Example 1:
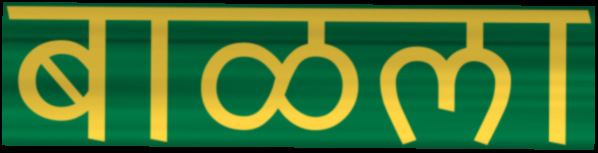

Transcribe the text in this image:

बाळला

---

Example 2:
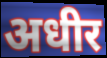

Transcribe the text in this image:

अधीर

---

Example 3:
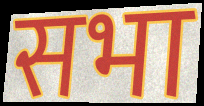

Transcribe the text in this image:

सभा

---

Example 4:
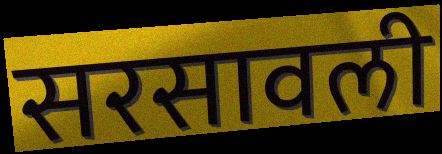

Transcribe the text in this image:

सरसावली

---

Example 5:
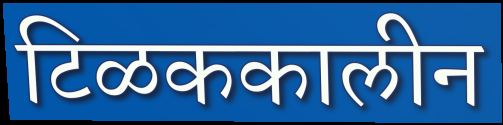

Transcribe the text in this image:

टिळककालीन